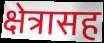
क्षेत्रासह